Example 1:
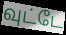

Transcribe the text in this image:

வுட்டே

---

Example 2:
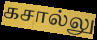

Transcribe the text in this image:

கசால்லு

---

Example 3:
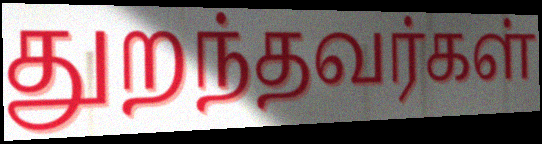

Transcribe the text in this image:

துறந்தவர்கள்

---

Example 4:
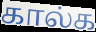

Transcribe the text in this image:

கால்க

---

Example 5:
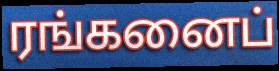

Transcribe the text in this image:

ரங்கனைப்